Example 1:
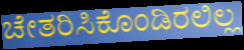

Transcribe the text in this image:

ಚೇತರಿಸಿಕೊಂಡಿರಲಿಲ್ಲ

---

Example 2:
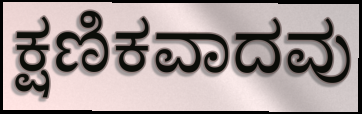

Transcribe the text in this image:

ಕ್ಷಣಿಕವಾದವು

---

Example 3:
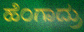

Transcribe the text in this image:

ಹೆಂಗಾದ್ರು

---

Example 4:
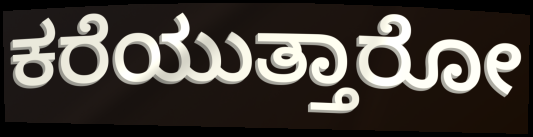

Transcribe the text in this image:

ಕರೆಯುತ್ತಾರೋ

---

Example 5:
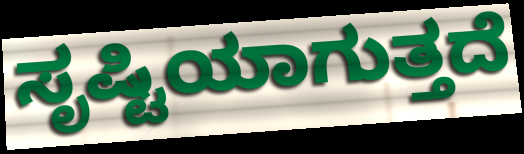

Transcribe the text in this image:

ಸೃಷ್ಟಿಯಾಗುತ್ತದೆ